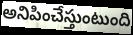
అనిపించేస్తుంటుంది